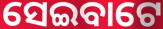
ସେଇବାଟେ